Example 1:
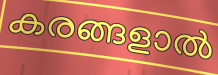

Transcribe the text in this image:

കരങ്ങളാൽ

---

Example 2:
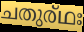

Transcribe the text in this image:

ചതുര്ഥഃ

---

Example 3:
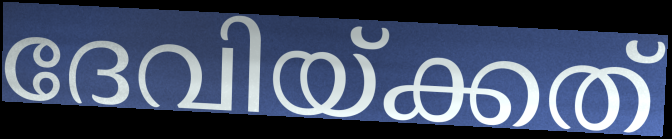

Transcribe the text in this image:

ദേവിയ്ക്കത്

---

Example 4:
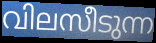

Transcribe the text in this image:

വിലസീടുന്ന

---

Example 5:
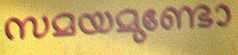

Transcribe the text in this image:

സമയമുണ്ടോ